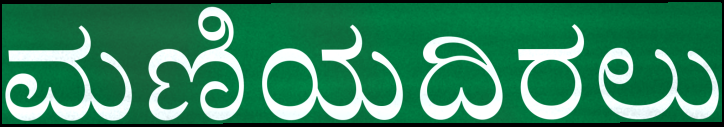
ಮಣಿಯದಿರಲು